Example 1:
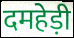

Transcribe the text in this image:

दमहेड़ी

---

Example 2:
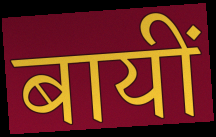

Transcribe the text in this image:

बायीं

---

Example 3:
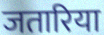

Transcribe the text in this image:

जतारिया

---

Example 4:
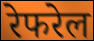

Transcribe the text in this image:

रेफरेल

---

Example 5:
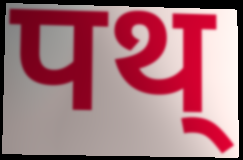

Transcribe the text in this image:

पथ्